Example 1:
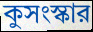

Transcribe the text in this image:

কুসংস্কার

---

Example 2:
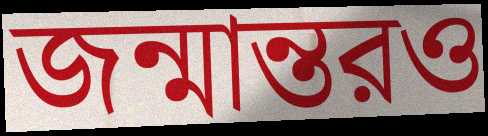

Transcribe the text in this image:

জন্মান্তরও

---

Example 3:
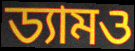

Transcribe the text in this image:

ড্যামও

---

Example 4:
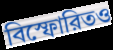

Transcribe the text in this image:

বিস্ফোরিতও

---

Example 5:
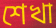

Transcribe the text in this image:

শেখা